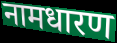
नामधारण